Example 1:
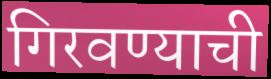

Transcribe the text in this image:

गिरवण्याची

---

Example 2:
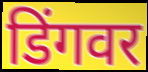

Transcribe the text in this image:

डिंगवर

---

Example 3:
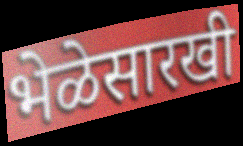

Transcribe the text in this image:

भेळेसारखी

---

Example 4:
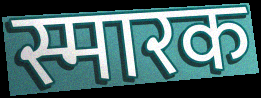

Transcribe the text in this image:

स्मारक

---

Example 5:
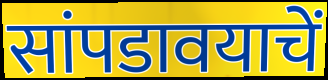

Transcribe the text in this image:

सांपडावयाचें